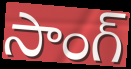
సాంగ్